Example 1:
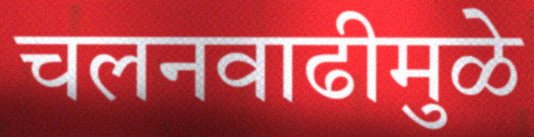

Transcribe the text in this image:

चलनवाढीमुळे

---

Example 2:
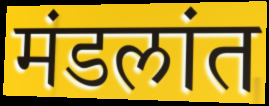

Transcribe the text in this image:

मंडलांत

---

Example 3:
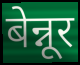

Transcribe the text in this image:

बेन्नूर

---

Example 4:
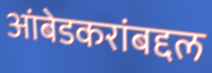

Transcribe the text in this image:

आंबेडकरांबद्दल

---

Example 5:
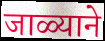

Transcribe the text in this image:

जाळ्याने